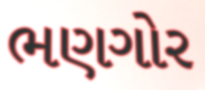
ભણગોર